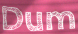
Dum